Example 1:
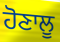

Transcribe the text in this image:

ਹੋਣਾਲੂ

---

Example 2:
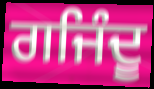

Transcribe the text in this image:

ਗਜਿੰਦੂ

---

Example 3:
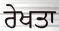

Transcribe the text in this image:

ਰੇਖਤਾ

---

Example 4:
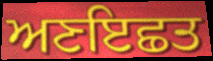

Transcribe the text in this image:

ਅਣਇਛਤ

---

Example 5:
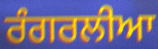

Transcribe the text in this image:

ਰੰਗਰਲੀਆ